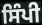
ਸਿੰਪੀ